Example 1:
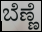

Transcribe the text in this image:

ಬೆಣ್ಣೆ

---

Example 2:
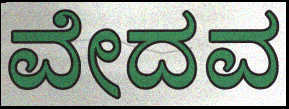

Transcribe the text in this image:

ವೇದವ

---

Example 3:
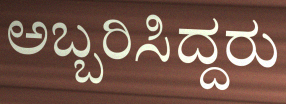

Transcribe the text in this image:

ಅಬ್ಬರಿಸಿದ್ದರು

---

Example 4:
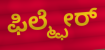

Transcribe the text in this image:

ಫಿಲ್ಮ್ಫೇರ್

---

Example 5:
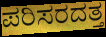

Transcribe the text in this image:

ಪರಿಸರದತ್ತ